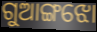
ଗୁଆଙ୍ଗଝୋ